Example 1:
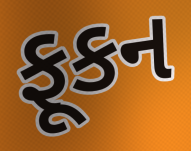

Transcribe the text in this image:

ફૂકન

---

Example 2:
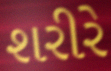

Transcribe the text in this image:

શરીરે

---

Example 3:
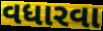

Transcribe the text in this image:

વધારવા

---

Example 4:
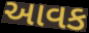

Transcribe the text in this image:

આવક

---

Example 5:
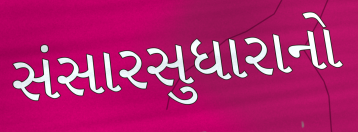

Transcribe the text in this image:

સંસારસુધારાનો